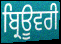
ਬ੍ਰਿਊਵਰੀ